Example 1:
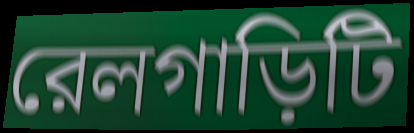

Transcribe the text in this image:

রেলগাড়িটি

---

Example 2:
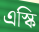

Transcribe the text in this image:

এস্কি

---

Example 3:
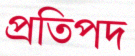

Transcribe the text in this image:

প্রতিপদ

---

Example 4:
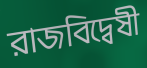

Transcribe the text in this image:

রাজবিদ্বেষী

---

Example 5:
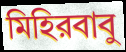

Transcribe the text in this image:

মিহিরবাবু